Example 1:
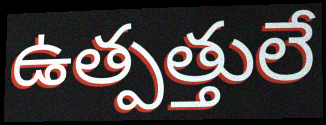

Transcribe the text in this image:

ఉత్పత్తులే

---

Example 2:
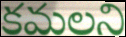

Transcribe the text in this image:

కమలని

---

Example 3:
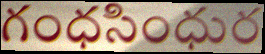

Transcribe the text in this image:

గంధసింధుర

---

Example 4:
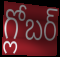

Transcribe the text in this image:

గ్లోబర్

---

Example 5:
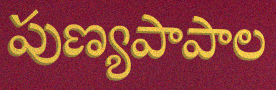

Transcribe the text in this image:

పుణ్యపాపాల